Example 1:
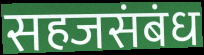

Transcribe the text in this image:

सहजसंबंध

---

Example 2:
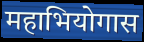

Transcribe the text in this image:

महाभियोगास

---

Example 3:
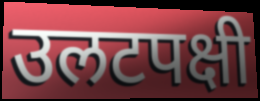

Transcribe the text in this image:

उलटपक्षी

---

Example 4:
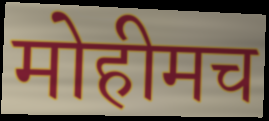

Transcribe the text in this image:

मोहीमच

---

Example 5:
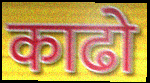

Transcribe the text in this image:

काढो